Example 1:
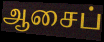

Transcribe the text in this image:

ஆசைப்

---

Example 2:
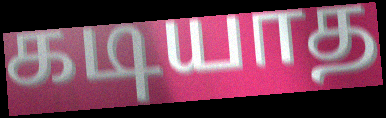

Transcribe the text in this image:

கடியாத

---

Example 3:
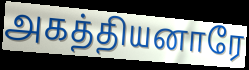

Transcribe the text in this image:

அகத்தியனாரே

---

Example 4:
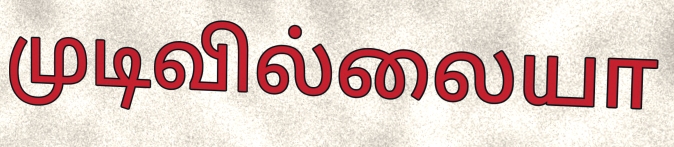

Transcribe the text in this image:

முடிவில்லையா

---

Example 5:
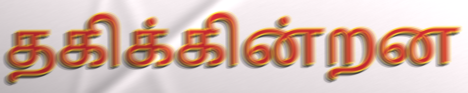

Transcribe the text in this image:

தகிக்கின்றன